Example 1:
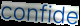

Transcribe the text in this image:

confide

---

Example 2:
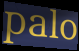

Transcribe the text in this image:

palo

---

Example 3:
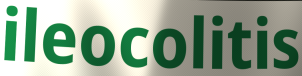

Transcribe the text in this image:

ileocolitis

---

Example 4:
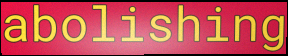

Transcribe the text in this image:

abolishing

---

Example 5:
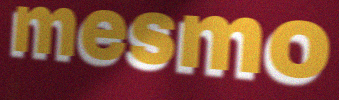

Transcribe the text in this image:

mesmo